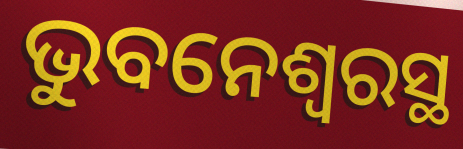
ଭୁବନେଶ୍ଵରସ୍ଥ